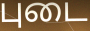
புடை